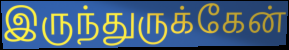
இருந்துருக்கேன்